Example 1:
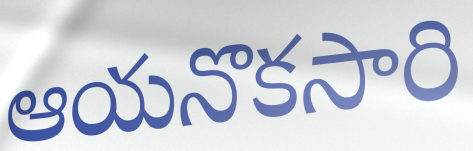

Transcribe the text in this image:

ఆయనొకసారి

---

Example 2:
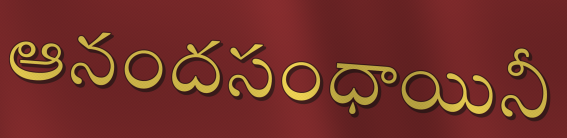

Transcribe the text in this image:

ఆనందసంధాయినీ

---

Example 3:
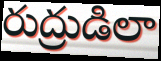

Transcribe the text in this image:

రుద్రుడిలా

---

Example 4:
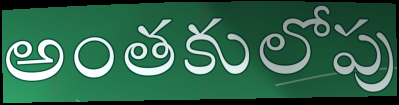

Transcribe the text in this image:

అంతకులోపు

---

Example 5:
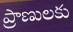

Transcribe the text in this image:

ప్రాణులకు